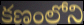
కణంలోని